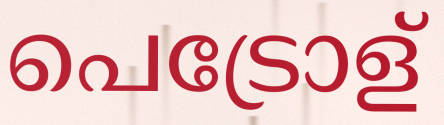
പെട്രോള്